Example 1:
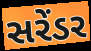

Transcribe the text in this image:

સરેંડર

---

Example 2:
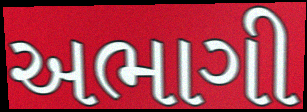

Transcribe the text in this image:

અભાગી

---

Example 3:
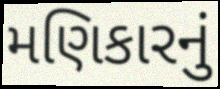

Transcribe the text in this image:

મણિકારનું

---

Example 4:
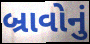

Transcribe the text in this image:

બ્રાવોનું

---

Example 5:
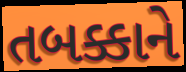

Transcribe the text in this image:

તબક્કાને